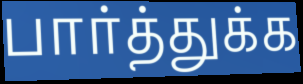
பார்த்துக்க